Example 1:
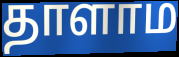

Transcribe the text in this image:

தாளாம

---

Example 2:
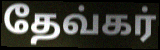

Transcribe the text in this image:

தேவ்கர்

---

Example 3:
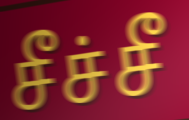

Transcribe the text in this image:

சீச்சீ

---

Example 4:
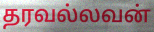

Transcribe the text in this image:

தரவல்லவன்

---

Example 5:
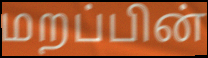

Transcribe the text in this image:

மறப்பின்